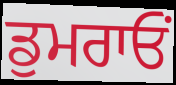
ਡੁਮਰਾਓਂ